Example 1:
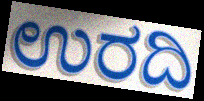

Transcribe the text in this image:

ಉರದಿ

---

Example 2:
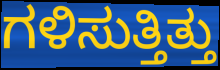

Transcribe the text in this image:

ಗಳಿಸುತ್ತಿತ್ತು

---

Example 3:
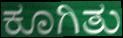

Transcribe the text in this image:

ಕೂಗಿತು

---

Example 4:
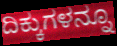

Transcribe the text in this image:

ದಿಕ್ಕುಗಳನ್ನೂ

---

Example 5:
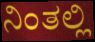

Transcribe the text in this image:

ನಿಂತಲ್ಲಿ